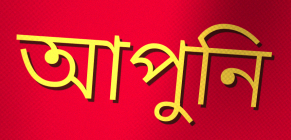
আপুনি